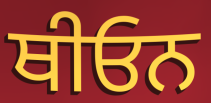
ਥੀਓਨ